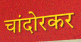
चांदोरकर